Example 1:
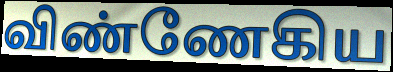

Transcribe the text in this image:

விண்ணேகிய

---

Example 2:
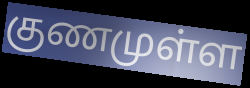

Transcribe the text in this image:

குணமுள்ள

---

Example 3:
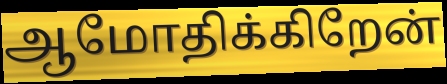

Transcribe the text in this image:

ஆமோதிக்கிறேன்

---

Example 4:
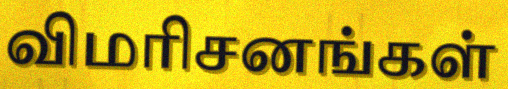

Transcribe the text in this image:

விமரிசனங்கள்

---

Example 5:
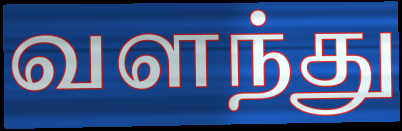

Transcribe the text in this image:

வளந்து